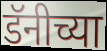
डॅनीच्या